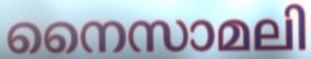
നൈസാമലി